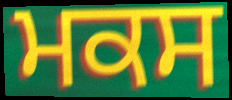
ਮਕਸ